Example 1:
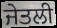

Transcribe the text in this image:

ਜੇਤਲੀ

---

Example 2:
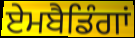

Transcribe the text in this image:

ਏਮਬੈਡਿੰਗਾਂ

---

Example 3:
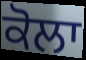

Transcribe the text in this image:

ਕੋਲਾ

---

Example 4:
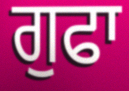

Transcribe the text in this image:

ਗੁਫਾ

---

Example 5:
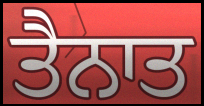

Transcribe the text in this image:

ਤੈਨਾਤ